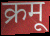
क्रमू